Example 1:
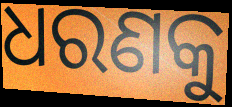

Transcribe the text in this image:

ଧରଣକୁ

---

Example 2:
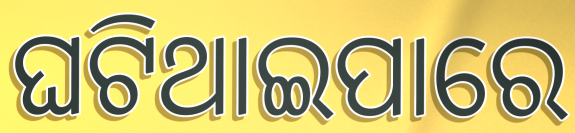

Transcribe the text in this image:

ଘଟିଥାଇପାରେ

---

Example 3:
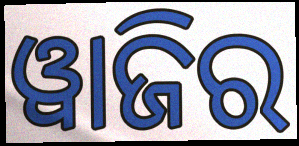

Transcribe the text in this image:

ୱାଜିର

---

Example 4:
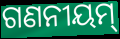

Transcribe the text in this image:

ଗଣନୀୟମ୍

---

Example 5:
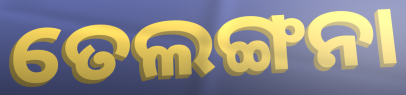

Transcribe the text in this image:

ତେଲଙ୍ଗନା